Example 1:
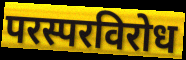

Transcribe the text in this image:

परस्परविरोध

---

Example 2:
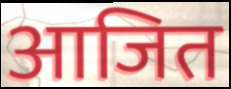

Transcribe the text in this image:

आजित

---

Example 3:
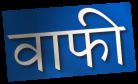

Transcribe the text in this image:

वाफी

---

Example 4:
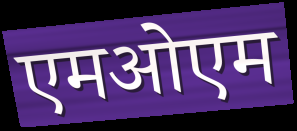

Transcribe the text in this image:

एमओएम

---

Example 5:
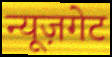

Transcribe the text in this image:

न्यूज़गेट